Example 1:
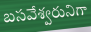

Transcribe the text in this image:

బసవేశ్వరునిగా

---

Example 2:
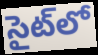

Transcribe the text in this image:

సైట్‌లో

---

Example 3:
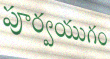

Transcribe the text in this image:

పూర్వయుగం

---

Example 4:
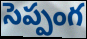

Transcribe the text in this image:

సెప్పంగ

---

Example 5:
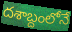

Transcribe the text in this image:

దశాబ్దంలోనే